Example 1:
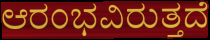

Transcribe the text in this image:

ಆರಂಭವಿರುತ್ತದೆ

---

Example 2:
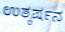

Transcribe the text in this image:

ಉತ್ಕರ್ಷನ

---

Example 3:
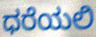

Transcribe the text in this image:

ಧರೆಯಲಿ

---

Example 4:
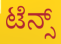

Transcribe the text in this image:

ಟೆನ್ಸ್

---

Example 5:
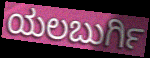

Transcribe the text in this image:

ಯಲಬುರ್ಗಿ